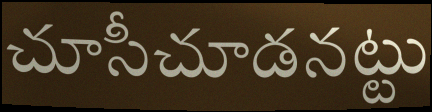
చూసీచూడనట్టు